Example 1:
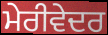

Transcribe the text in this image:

ਮੇਰੀਵੇਦਰ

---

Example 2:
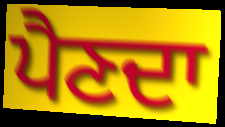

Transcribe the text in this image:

ਪੈਣਦਾ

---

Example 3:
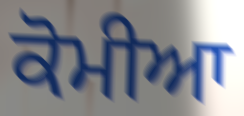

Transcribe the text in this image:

ਕੋਮੀਆ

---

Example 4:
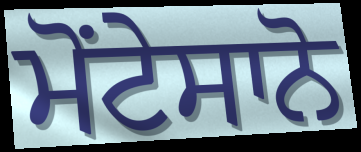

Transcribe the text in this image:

ਮੋਂਟੇਸਾਨੋ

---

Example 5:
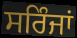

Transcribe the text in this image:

ਸਰਿੰਜਾਂ